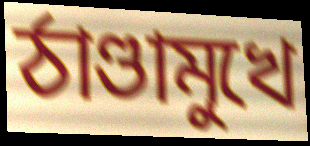
ঠাণ্ডামুখে